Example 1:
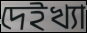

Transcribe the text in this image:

দেইখ্যা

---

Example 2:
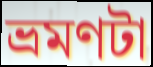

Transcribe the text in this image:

ভ্রমণটা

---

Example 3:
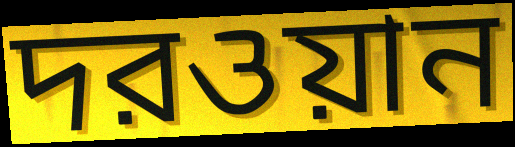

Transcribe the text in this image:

দরওয়ান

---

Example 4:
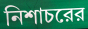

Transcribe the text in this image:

নিশাচরের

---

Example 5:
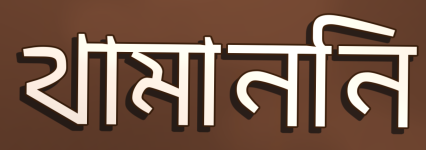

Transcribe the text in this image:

থামাননি